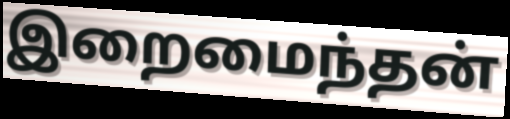
இறைமைந்தன்